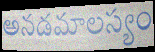
అనడమాలస్యం